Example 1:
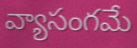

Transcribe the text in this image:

వ్యాసంగమే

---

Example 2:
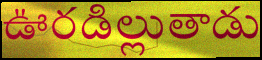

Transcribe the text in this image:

ఊరడిల్లుతాడు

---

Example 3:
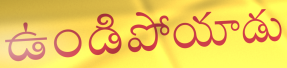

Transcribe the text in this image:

ఉండిపోయాడు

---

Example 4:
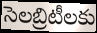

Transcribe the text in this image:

సెలబ్రిటీలకు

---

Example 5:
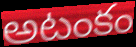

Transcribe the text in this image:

అటంకం